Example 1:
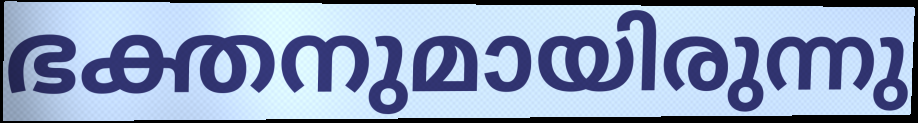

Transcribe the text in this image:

ഭക്തനുമായിരുന്നു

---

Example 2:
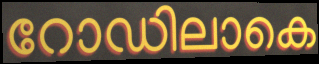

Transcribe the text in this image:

റോഡിലാകെ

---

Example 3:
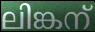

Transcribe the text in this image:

ലിങ്കന്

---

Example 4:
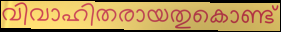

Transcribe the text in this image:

വിവാഹിതരായതുകൊണ്ട്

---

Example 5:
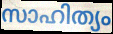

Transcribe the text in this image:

സാഹിത്യം